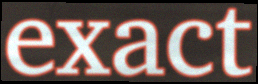
exact